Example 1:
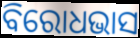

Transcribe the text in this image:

ବିରୋଧଭାସ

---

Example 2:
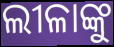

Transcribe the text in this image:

ଲୀଳାଙ୍କୁ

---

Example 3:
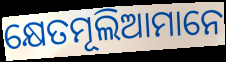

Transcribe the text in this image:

କ୍ଷେତମୂଲିଆମାନେ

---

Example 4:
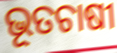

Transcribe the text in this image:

ଭୂତଚାଷୀ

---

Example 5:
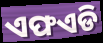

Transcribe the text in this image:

ଏଫଏଡି